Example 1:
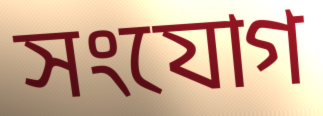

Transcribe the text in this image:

সংযোগ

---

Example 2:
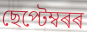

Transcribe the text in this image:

ছেপ্টেম্বৰৰ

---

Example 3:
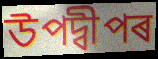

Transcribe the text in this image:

উপদ্বীপৰ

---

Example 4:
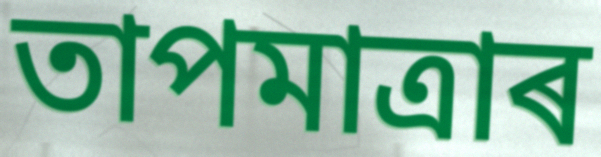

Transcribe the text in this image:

তাপমাত্ৰাৰ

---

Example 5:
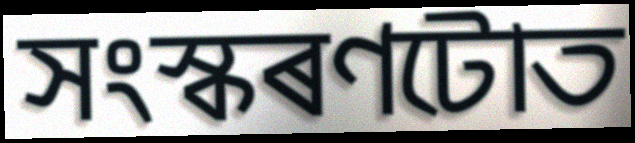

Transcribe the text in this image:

সংস্কৰণটোত